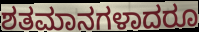
ಶತಮಾನಗಳಾದರೂ